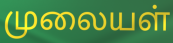
முலையள்